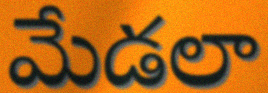
మేడలా